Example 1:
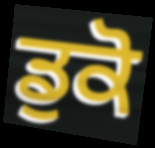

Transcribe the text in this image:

ਡੁਕੋ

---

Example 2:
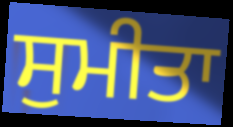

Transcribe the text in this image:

ਸੁਮੀਤਾ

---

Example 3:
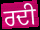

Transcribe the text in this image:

ਰਦੀ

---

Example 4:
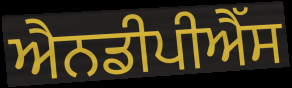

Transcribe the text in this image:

ਐਨਡੀਪੀਐੱਸ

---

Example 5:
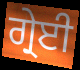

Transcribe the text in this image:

ਗ੍ਰੇਈ